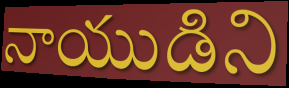
నాయుడిని